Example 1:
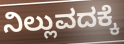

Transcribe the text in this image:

ನಿಲ್ಲುವದಕ್ಕೆ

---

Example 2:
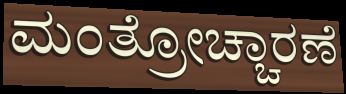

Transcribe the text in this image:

ಮಂತ್ರೋಚ್ಚಾರಣೆ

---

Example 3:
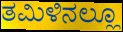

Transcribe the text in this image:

ತಮಿಳಿನಲ್ಲೂ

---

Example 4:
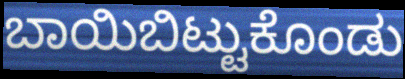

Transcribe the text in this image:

ಬಾಯಿಬಿಟ್ಟುಕೊಂಡು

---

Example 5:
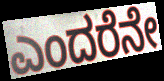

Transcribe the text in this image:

ಎಂದರೆನೇ